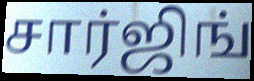
சார்ஜிங்